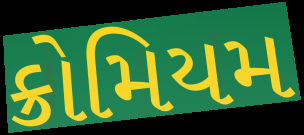
ક્રોમિયમ